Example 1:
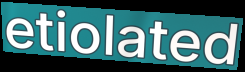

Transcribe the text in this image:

etiolated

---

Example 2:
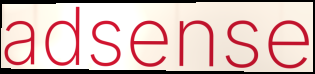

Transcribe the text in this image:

adsense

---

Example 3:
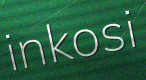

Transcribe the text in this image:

inkosi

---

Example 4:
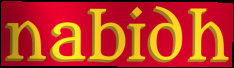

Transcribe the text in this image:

nabidh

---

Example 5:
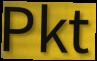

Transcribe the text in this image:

Pkt